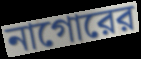
নাগোরের